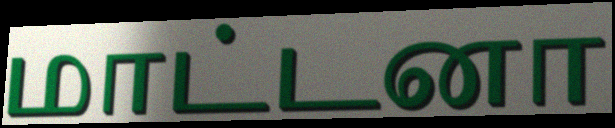
மாட்டனா